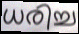
ധരിച്ച